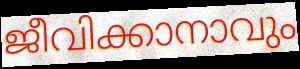
ജീവിക്കാനാവും